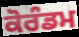
ਕੋਰੰਡਮ